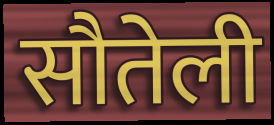
सौतेली